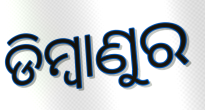
ଡିମ୍ବାଣୁର